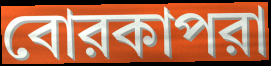
বোরকাপরা